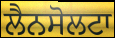
ਲੈਨਸੋਲਟਾ